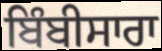
ਬਿੰਬੀਸਾਰਾ